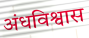
अंधविश्वास